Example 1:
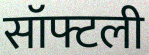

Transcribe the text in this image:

सॉफ्टली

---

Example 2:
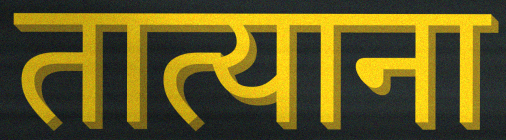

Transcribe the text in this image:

तात्याना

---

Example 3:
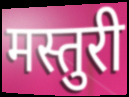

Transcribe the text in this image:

मस्तुरी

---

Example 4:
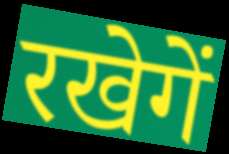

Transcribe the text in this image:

रखेगें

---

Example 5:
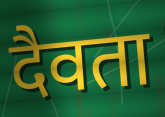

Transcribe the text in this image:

दैवता